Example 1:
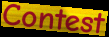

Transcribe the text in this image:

Contest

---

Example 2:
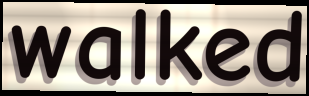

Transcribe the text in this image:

walked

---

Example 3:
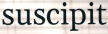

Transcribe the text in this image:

suscipit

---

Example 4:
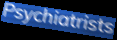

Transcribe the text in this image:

Psychiatrists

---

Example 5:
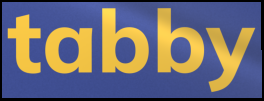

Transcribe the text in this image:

tabby